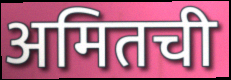
अमितची